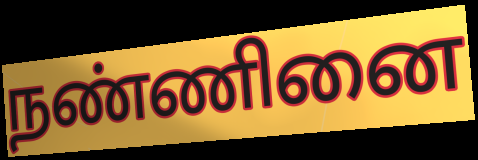
நண்ணினை